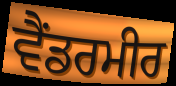
ਵੈਂਡਰਮੀਰ